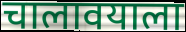
चालावयाला